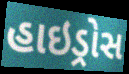
હાઇડ્રોસ